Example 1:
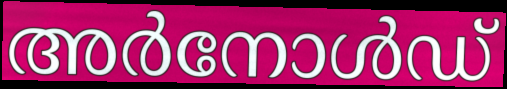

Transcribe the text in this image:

അർനോൾഡ്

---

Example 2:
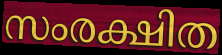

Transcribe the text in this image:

സംരക്ഷിത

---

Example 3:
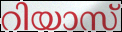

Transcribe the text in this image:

റിയാസ്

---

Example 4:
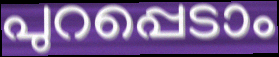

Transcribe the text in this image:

പുറപ്പെടാം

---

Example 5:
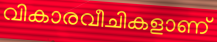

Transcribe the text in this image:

വികാരവീചികളാണ്